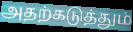
அதற்கடுத்தும்